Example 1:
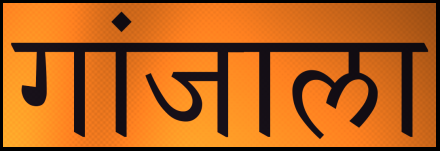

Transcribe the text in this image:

गांजाला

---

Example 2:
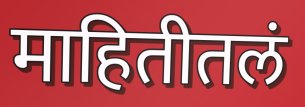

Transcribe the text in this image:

माहितीतलं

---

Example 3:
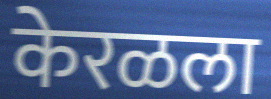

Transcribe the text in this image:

केरळला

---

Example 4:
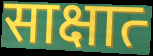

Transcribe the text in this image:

साक्षात्‍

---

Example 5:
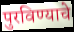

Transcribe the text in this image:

पुरविण्याचे